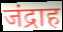
जंद्राह